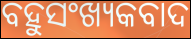
ବହୁସଂଖ୍ୟକବାଦ